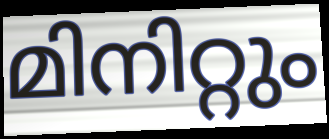
മിനിറ്റും